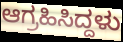
ಆಗ್ರಹಿಸಿದ್ದಳು